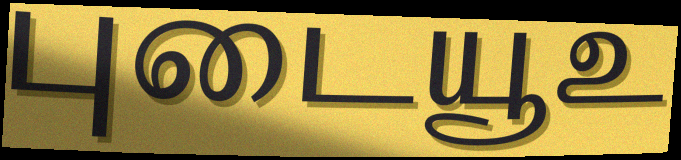
புடையூஉ